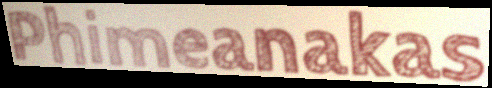
Phimeanakas